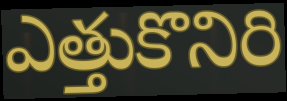
ఎత్తుకొనిరి